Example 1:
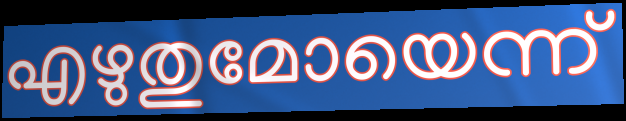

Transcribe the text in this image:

എഴുതുമോയെന്ന്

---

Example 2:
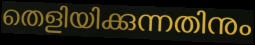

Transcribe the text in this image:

തെളിയിക്കുന്നതിനും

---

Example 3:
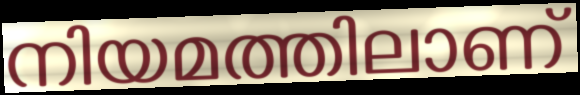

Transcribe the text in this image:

നിയമത്തിലാണ്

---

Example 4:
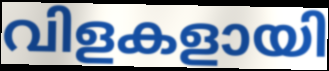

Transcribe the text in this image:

വിളകളായി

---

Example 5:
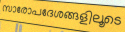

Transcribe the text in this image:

സാരോപദേശങ്ങളിലൂടെ